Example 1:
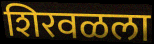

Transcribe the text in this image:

शिरवळला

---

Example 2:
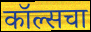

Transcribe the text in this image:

कॉल्सचा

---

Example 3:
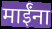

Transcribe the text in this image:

माईंना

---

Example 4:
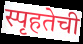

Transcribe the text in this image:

स्पृहतेची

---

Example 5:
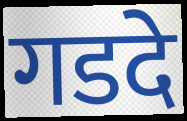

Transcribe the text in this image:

गडदे